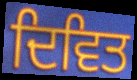
ਦਿਵਿਤ